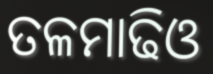
ତଳମାଢିଓ